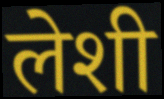
लेशी